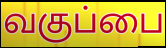
வகுப்பை